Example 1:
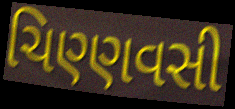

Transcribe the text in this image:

ચિણ્ણવસી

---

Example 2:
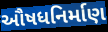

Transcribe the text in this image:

ઔષધનિર્માણ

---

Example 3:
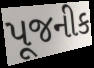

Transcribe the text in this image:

પૂજનીક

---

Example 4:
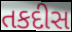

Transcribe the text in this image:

તકદીસ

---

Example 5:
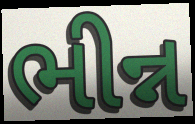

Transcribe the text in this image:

ભીન્ન